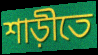
শাড়ীতে